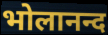
भोलानन्द